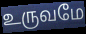
உருவமே